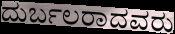
ದುರ್ಬಲರಾದವರು